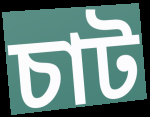
চাট